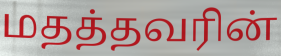
மதத்தவரின்